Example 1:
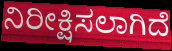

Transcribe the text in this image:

ನಿರೀಕ್ಷಿಸಲಾಗಿದೆ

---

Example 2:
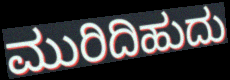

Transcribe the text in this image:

ಮುರಿದಿಹುದು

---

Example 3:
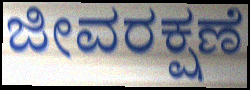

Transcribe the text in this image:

ಜೀವರಕ್ಷಣೆ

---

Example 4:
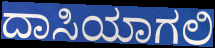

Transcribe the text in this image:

ದಾಸಿಯಾಗಲಿ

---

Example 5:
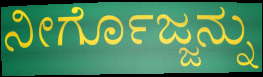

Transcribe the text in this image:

ನೀರ್ಗೊಜ್ಜನ್ನು